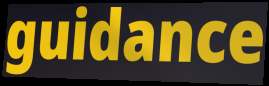
guidance